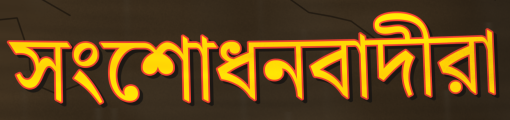
সংশোধনবাদীরা